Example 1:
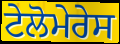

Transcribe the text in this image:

ਟੇਲੋਮੇਰੇਸ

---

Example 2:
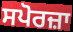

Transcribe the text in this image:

ਸਪੋਰਜ਼ਾ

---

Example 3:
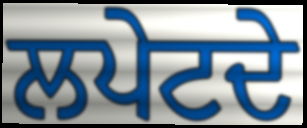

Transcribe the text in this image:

ਲਪੇਟਦੇ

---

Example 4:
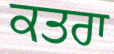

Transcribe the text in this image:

ਕਤਰਾ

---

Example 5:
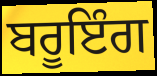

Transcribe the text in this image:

ਬਰੂਇੰਗ